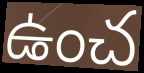
ఉంచ